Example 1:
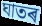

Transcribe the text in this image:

ঘাতৰ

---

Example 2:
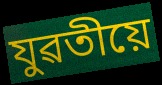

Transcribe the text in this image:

যুৱতীয়ে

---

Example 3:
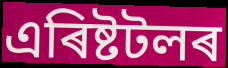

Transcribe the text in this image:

এৰিষ্টটলৰ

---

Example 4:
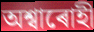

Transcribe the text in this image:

অশ্বাৰোহী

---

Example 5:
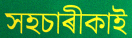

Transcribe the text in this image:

সহচাৰীকাই